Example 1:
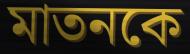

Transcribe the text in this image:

মাতনকে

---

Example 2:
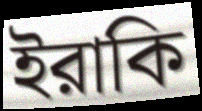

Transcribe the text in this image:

ইরাকি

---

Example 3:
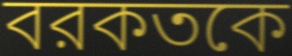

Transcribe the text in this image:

বরকতকে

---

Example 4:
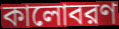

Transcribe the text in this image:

কালোবরণ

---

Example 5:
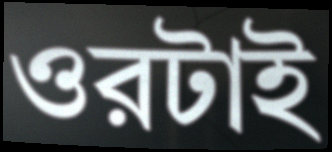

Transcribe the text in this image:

ওরটাই